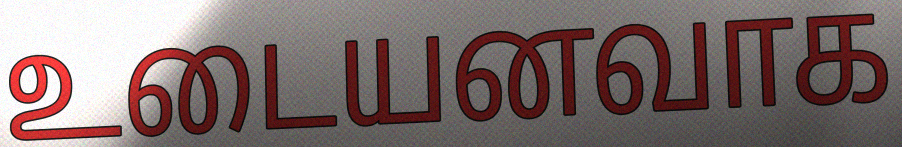
உடையனவாக